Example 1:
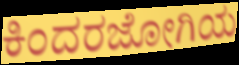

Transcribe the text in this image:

ಕಿಂದರಜೋಗಿಯ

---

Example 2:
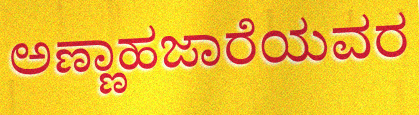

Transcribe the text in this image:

ಅಣ್ಣಾಹಜಾರೆಯವರ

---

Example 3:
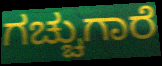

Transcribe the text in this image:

ಗಚ್ಚುಗಾರೆ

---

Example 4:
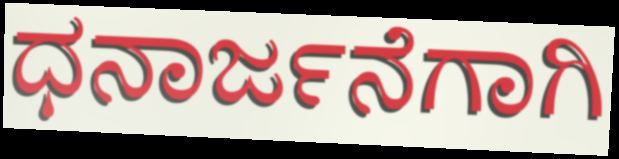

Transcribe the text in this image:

ಧನಾರ್ಜನೆಗಾಗಿ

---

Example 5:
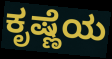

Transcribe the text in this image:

ಕೃಷ್ಣೆಯ